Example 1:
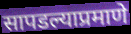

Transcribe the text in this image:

सापडल्याप्रमाणे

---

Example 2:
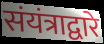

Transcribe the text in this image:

संयंत्राद्वारे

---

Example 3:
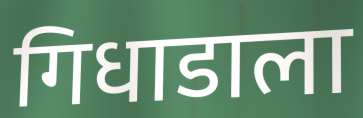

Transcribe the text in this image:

गिधाडाला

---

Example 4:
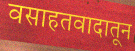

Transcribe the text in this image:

वसाहतवादातून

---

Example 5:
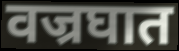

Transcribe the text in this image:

वज्रघात